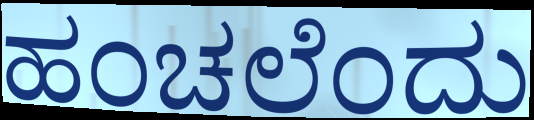
ಹಂಚಲೆಂದು